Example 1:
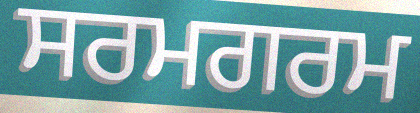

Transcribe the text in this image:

ਸਰਮਗਰਮ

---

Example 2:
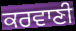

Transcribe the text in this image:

ਕਰਵਾਣੀ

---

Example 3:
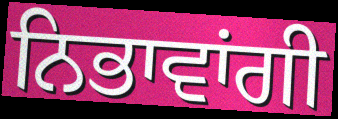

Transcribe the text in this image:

ਨਿਭਾਵਾਂਗੀ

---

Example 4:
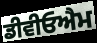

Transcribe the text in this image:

ਡੀਵੀਓਐਮ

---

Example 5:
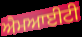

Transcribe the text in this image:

ਐਮਆਈਟੀ